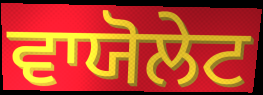
ਵਾਯੋਲੇਟ